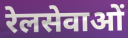
रेलसेवाओं